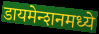
डायमेन्शनमध्ये